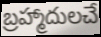
బ్రహ్మాదులచే